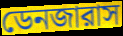
ডেনজারাস